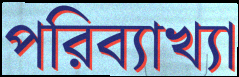
পরিব্যাখ্যা